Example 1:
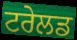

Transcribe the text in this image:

ਟਰੇਲਡ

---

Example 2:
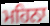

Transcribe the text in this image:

ਮਹਿਨਾ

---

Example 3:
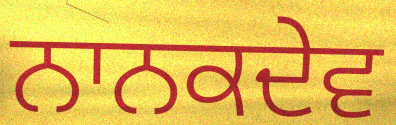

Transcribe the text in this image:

ਨਾਨਕਦੇਵ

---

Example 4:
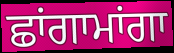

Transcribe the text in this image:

ਛਾਂਗਾਮਾਂਗਾ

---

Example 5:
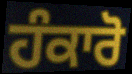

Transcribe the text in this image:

ਹੰਕਾਰੋ